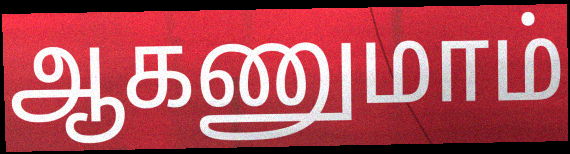
ஆகணுமாம்